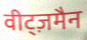
वीट्ज़मैन